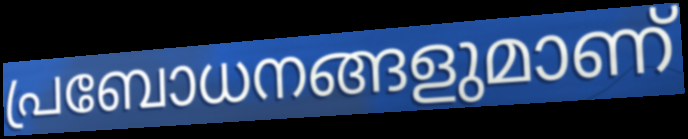
പ്രബോധനങ്ങളുമാണ്